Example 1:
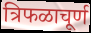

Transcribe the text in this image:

त्रिफळाचूर्ण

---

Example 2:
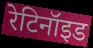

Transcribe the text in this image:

रेटिनॉइड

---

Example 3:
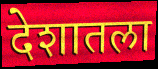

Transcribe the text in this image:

देशातला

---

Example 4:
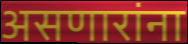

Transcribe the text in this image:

असणारांना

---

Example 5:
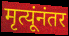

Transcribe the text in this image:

मृत्यूंनंतर